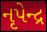
નૃપેન્દ્ર